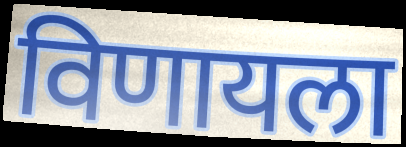
विणायला